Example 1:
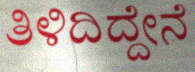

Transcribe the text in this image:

ತಿಳಿದಿದ್ದೇನೆ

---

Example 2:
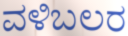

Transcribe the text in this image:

ವಳಿಬಲರ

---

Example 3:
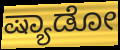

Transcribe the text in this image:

ಷ್ಯಾಡೋ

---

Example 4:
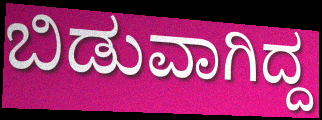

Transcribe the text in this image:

ಬಿಡುವಾಗಿದ್ದ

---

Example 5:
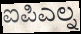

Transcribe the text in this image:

ಐಪಿಎಲ್ನ